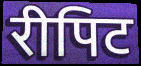
रीपिट